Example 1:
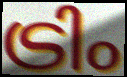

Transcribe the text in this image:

ട്രിം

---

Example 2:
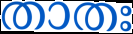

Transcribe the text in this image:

താതഃ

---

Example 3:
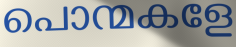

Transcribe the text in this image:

പൊന്മകളേ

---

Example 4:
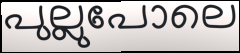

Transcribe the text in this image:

പുല്ലുപോലെ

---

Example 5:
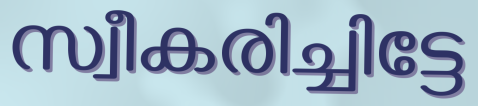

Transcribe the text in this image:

സ്വീകരിച്ചിട്ടേ